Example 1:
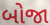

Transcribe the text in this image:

બોજા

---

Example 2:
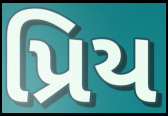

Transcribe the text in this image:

પ્રિય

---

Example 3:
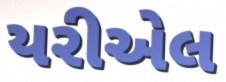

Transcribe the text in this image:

યરીએલ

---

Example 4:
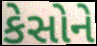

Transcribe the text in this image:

કેસોને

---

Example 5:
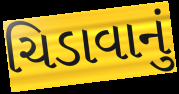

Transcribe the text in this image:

ચિડાવાનું